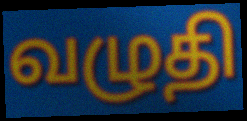
வழுதி